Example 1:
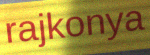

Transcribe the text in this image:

rajkonya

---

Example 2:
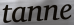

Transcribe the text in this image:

tanne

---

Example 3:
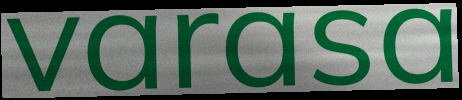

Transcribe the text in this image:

varasa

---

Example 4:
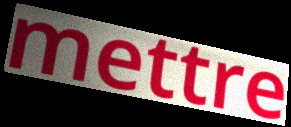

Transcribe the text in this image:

mettre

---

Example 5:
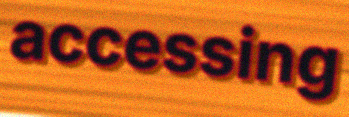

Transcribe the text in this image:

accessing